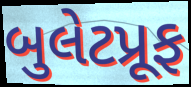
બુલેટપ્રૂફ